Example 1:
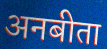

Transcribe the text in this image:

अनबीता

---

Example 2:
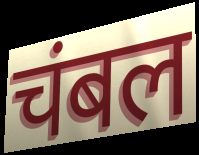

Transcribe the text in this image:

चंबल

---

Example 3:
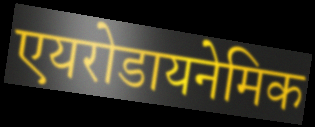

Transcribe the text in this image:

एयरोडायनेमिक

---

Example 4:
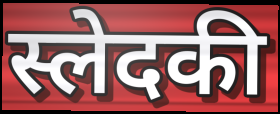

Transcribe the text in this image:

स्लेदकी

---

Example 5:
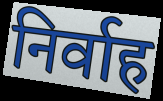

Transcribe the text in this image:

निर्वाह